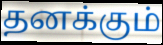
தனக்கும்